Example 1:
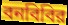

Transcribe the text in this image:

বনবিবির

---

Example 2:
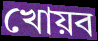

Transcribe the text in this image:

খোয়ব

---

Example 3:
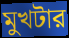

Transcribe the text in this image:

মুখটার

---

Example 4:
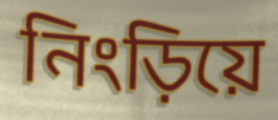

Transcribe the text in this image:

নিংড়িয়ে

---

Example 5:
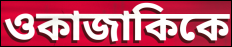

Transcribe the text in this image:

ওকাজাকিকে